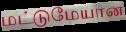
மட்டுமேயான